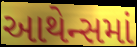
આથેન્સમાં